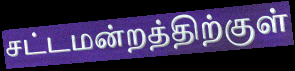
சட்டமன்றத்திற்குள்